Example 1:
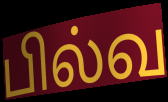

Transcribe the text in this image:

பில்வ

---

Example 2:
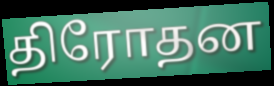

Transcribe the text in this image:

திரோதன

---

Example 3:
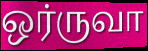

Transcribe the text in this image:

ஒர்ருவா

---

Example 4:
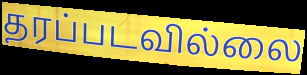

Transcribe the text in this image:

தரப்படவில்லை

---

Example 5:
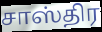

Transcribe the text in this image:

சாஸ்திர